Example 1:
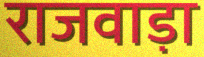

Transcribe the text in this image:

राजवाड़ा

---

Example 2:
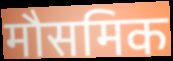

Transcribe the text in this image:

मौसमिक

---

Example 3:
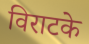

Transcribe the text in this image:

विराटके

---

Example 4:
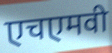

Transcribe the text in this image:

एचएमवी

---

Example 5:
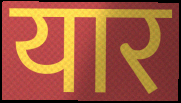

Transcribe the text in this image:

यार